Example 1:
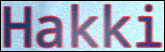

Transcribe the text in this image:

Hakki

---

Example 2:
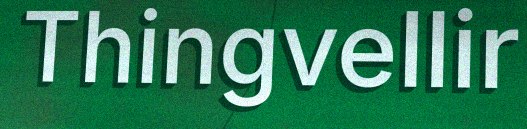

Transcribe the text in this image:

Thingvellir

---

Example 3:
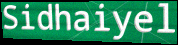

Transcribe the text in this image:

Sidhaiyel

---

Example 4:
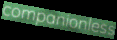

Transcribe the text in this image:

companionless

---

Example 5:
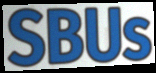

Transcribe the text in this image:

SBUs